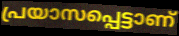
പ്രയാസപ്പെട്ടാണ്